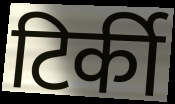
टिर्की